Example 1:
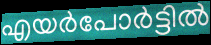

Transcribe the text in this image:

എയർപോർട്ടിൽ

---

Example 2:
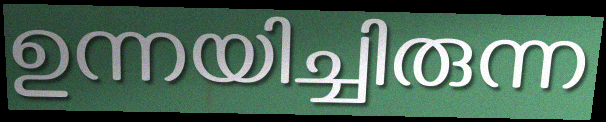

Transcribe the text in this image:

ഉന്നയിച്ചിരുന്ന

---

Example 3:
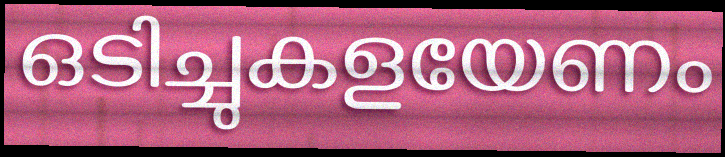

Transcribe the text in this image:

ഒടിച്ചുകളയേണം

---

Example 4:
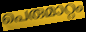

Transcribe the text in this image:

പെരുമാറ്റം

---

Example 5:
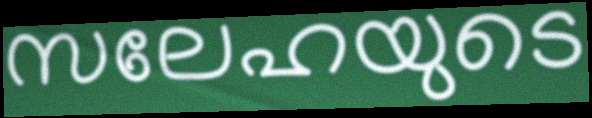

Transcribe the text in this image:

സലേഹയുടെ